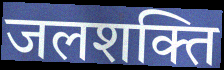
जलशक्ति